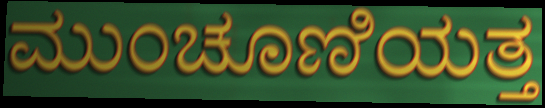
ಮುಂಚೂಣಿಯತ್ತ